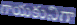
గాయకునిగా